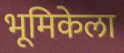
भूमिकेला